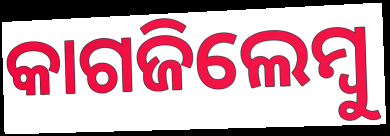
କାଗଜିଲେମ୍ବୁ